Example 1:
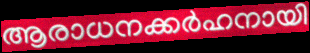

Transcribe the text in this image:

ആരാധനക്കർഹനായി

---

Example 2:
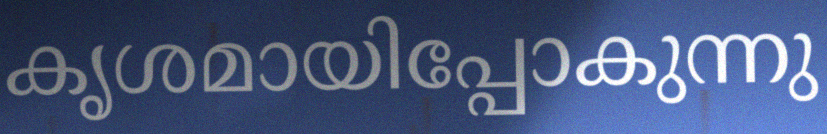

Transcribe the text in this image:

കൃശമായിപ്പോകുന്നു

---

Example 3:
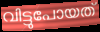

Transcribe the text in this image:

വിട്ടുപോയത്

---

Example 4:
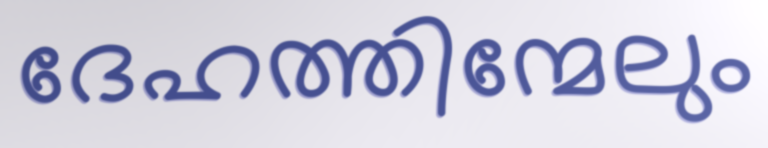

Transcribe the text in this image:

ദേഹത്തിന്മേലും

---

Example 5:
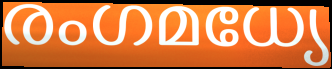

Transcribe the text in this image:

രംഗമധ്യേ